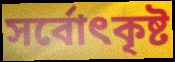
সর্বোৎকৃষ্ট